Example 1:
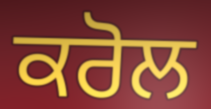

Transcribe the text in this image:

ਕਰੋਲ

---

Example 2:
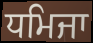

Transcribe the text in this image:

ਧਮਿਜਾ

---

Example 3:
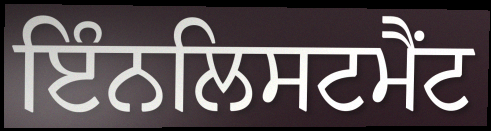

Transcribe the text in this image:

ਇੰਨਲਿਸਟਮੈਂਟ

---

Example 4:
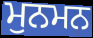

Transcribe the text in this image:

ਮੁਨਮਨ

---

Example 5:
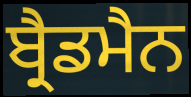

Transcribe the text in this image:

ਬ੍ਰੈਡਮੈਨ